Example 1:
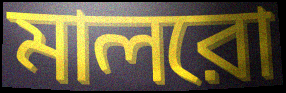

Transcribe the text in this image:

মালরো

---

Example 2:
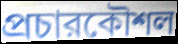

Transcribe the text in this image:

প্রচারকৌশল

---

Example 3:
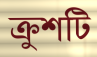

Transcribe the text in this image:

ক্রুশটি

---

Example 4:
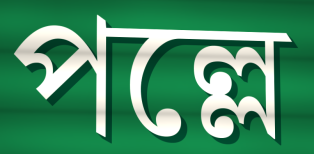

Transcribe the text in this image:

পল্লে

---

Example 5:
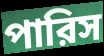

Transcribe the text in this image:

পারিস